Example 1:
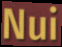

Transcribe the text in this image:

Nui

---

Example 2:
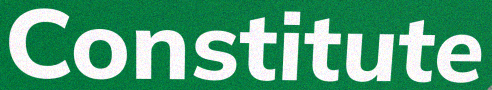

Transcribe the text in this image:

Constitute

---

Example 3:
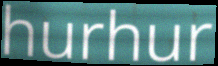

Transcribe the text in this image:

hurhur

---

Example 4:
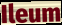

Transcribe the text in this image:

Ileum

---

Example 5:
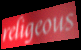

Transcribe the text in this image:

religeous